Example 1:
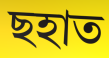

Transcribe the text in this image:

ছহাত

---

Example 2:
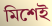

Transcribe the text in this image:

মিশেই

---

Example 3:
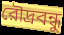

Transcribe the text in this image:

রৌদ্রবন্ধু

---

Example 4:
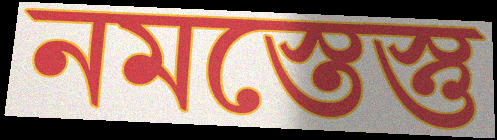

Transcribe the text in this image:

নমস্তেস্তু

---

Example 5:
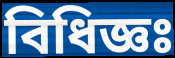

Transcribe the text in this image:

বিধিজ্ঞঃ